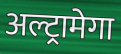
अल्ट्रामेगा